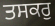
ਤਸਕਰੁ